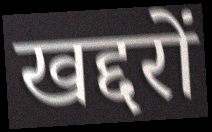
खद्दरों